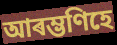
আৰম্ভণিহে